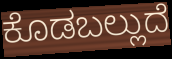
ಕೊಡಬಲ್ಲುದೆ